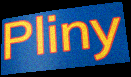
Pliny